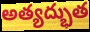
అత్యద్భుత